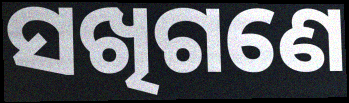
ସଖିଗଣେ